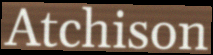
Atchison